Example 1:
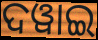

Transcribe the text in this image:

ଦୱାଇ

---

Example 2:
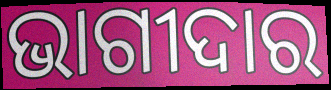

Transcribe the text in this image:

ଭାଗୀଦାର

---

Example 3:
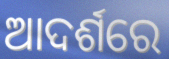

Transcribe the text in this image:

ଆଦର୍ଶରେ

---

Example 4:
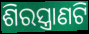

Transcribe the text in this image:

ଶିରସ୍ତ୍ରାଣଟି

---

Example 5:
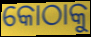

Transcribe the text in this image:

କୋଠାକୁ